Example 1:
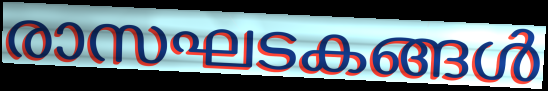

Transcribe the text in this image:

രാസഘടകങ്ങൾ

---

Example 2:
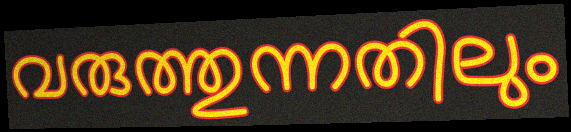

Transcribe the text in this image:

വരുത്തുന്നതിലും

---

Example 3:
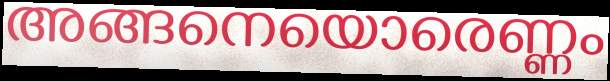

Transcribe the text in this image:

അങ്ങനെയൊരെണ്ണം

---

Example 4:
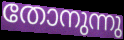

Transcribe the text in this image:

തോനുന്നു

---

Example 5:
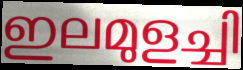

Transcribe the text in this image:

ഇലമുളച്ചി